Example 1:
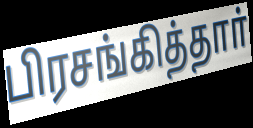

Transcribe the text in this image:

பிரசங்கித்தார்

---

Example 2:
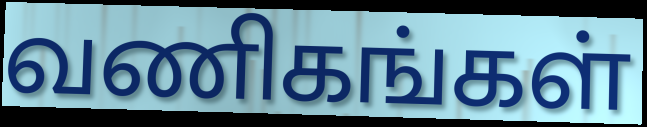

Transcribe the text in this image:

வணிகங்கள்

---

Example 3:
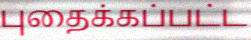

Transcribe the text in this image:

புதைக்கப்பட்ட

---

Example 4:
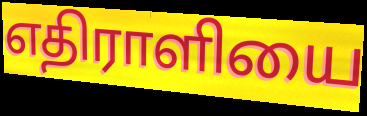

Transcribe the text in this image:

எதிராளியை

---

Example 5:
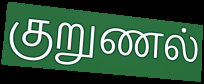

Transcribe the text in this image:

குறுணல்